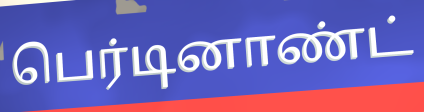
பெர்டினாண்ட்